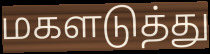
மகளடுத்து